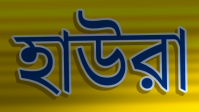
হাউরা